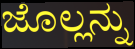
ಜೊಲ್ಲನ್ನು